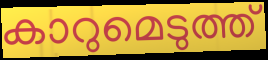
കാറുമെടുത്ത്